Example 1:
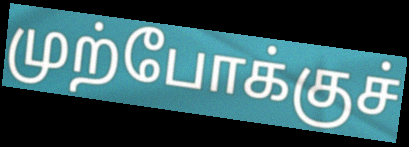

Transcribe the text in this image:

முற்போக்குச்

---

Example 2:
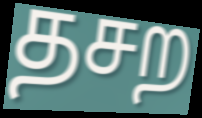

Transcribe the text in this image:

தசற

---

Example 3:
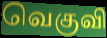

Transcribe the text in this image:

வெகுவி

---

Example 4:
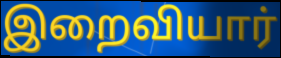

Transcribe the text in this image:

இறைவியார்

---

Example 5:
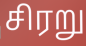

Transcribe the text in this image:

சிரறு